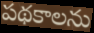
పథకాలను